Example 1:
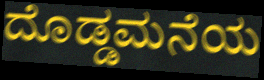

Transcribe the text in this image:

ದೊಡ್ಡಮನೆಯ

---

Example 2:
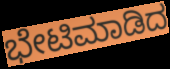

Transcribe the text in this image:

ಭೇಟಿಮಾಡಿದ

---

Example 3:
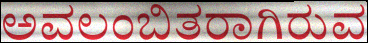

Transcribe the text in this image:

ಅವಲಂಬಿತರಾಗಿರುವ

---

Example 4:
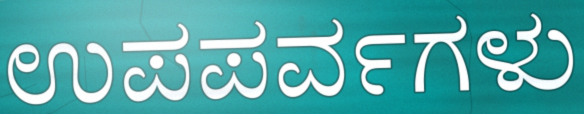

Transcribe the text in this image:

ಉಪಪರ್ವಗಳು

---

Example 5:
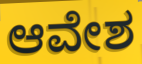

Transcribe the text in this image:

ಆವೇಶ